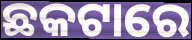
ଛକଟାରେ